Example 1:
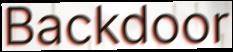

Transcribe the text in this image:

Backdoor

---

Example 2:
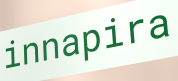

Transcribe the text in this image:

innapira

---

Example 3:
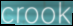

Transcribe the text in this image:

crook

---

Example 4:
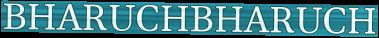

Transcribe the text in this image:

BHARUCHBHARUCH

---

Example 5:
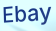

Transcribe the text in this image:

Ebay